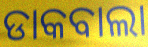
ଡାକବାଲା